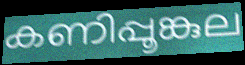
കണിപ്പൂങ്കുല